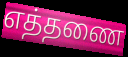
எத்தணை